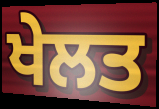
ਖੇਲਤ